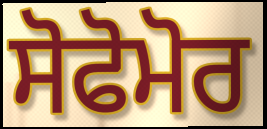
ਸੋਫੋਮੋਰ